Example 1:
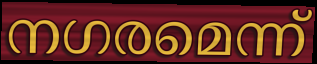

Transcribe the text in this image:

നഗരമെന്ന്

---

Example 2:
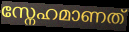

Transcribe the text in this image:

സ്നേഹമാണത്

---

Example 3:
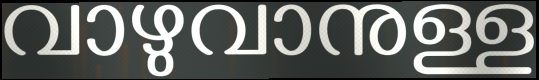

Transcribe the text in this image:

വാഴുവാനുള്ള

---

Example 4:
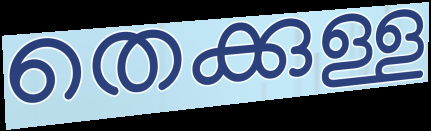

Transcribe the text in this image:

തെക്കുള്ള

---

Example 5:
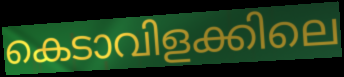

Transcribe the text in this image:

കെടാവിളക്കിലെ